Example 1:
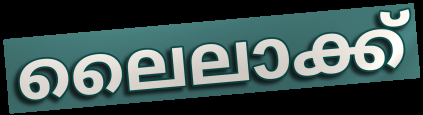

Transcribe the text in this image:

ലൈലാക്ക്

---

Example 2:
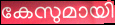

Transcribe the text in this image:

കേസുമായി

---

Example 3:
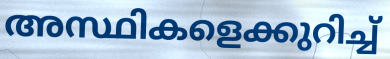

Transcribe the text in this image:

അസ്ഥികളെക്കുറിച്ച്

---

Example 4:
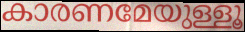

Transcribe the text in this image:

കാരണമേയുള്ളൂ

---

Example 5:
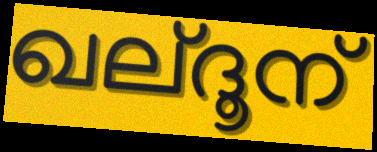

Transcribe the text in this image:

ഖല്ദൂന്